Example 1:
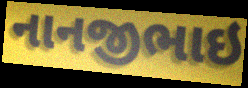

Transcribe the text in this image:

નાનજીભાઇ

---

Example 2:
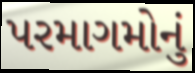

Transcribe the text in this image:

પરમાગમોનું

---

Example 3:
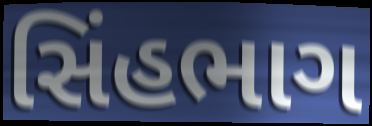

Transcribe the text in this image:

સિંહભાગ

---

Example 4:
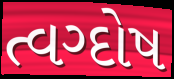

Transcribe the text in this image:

ત્વગ્દોષ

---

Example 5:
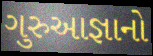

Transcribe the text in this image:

ગુરુઆજ્ઞાનો